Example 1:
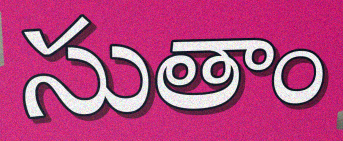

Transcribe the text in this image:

సుతాం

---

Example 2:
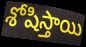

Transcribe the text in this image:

శోషిస్తాయి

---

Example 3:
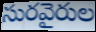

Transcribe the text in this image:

సురవైరుల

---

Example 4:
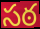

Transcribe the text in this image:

సఠ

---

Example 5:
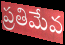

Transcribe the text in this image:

ప్రతిమేవ